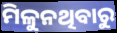
ମିଳୁନଥିବାରୁ